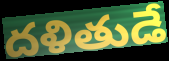
దళితుడే